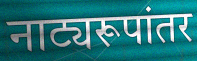
नाट्यरूपांतर